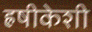
ह्रषीकेशी